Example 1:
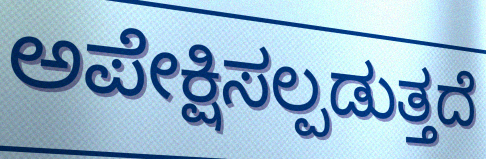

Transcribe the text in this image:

ಅಪೇಕ್ಷಿಸಲ್ಪಡುತ್ತದೆ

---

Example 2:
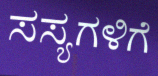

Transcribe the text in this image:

ಸಸ್ಯಗಳಿಗೆ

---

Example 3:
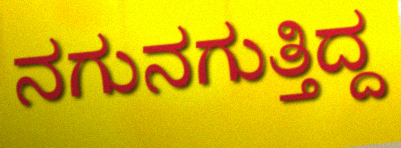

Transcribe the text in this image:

ನಗುನಗುತ್ತಿದ್ದ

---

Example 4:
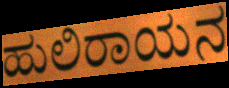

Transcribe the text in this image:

ಹುಲಿರಾಯನ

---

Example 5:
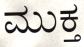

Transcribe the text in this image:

ಮುಕ್ತ